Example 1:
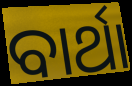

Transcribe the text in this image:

ବାର୍ଥା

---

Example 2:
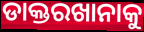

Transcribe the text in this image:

ଡାକ୍ତରଖାନାକୁ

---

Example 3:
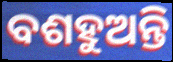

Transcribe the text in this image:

ବଶହୁଅନ୍ତି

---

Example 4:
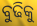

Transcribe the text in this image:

ବୁଢିକୁ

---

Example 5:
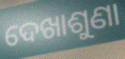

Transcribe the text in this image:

ଦେଖାଶୁଣା